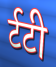
र्टटी